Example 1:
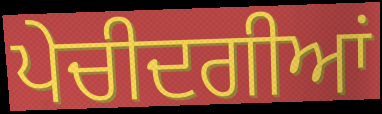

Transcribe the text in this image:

ਪੇਚੀਦਗੀਆਂ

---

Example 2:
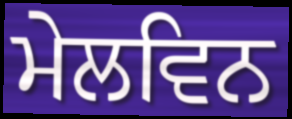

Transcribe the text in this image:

ਮੇਲਵਿਨ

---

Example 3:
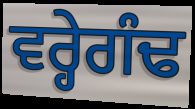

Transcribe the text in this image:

ਵਰ੍ਹੇਗੰਢ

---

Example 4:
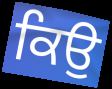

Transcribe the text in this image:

ਕਿਉ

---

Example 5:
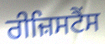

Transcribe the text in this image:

ਰੀਜ਼ਿਸਟੈਂਸ